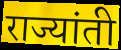
राज्यांती